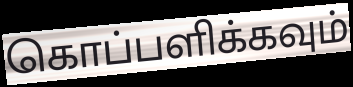
கொப்பளிக்கவும்